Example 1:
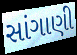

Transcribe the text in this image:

સાંગાણી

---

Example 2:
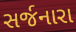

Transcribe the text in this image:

સર્જનારા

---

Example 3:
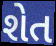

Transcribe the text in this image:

શેત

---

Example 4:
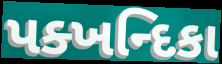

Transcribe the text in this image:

પક્ખન્દિકા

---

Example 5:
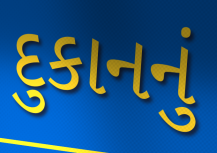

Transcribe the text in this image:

દુકાનનું